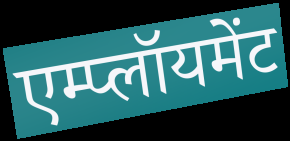
एम्प्लॉयमेंट